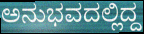
ಅನುಭವದಲ್ಲಿದ್ದ